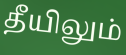
தீயிலும்